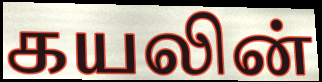
கயலின்